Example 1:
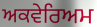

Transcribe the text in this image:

ਅਕਵੇਰਿਅਮ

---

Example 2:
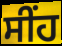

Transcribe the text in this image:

ਸੀਂਹ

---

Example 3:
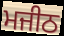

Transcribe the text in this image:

ਮਜੀਠ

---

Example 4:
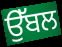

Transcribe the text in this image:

ਉੱਬਲ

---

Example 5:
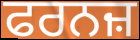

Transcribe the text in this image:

ਫਰਨਜ਼